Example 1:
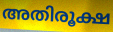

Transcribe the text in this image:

അതിരൂക്ഷ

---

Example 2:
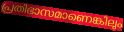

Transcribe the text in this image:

പ്രതിഭാസമാണെങ്കിലും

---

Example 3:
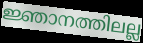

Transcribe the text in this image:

ജ്ഞാനത്തിലല്ല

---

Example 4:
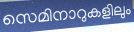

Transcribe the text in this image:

സെമിനാറുകളിലും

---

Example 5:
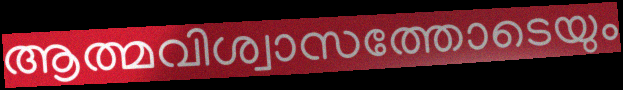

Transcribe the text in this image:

ആത്മവിശ്വാസത്തോടെയും